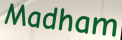
Madham